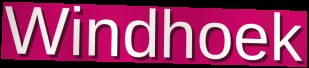
Windhoek